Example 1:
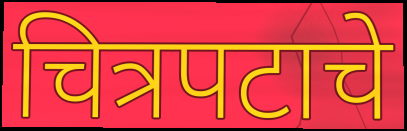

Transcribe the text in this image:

चित्रपटाचे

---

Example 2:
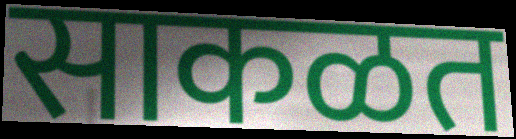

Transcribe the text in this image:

साकळत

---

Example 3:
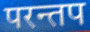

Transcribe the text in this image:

परन्तप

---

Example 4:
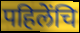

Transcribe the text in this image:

पहिलेंचि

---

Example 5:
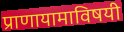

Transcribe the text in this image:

प्राणायामाविषयी